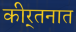
कीर्तनात